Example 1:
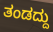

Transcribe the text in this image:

ತಂಡದ್ದು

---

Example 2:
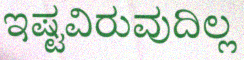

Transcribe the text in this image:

ಇಷ್ಟವಿರುವುದಿಲ್ಲ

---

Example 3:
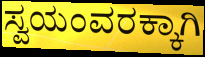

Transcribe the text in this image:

ಸ್ವಯಂವರಕ್ಕಾಗಿ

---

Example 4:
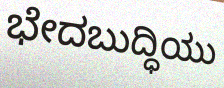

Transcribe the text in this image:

ಭೇದಬುದ್ಧಿಯು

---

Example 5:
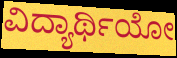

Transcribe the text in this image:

ವಿದ್ಯಾರ್ಥಿಯೋ